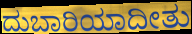
ದುಬಾರಿಯಾದೀತು